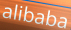
alibaba